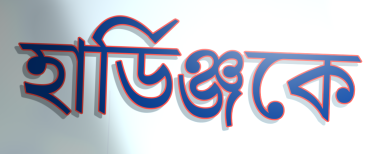
হার্ডিঞ্জকে